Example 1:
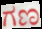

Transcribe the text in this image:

ಗಣ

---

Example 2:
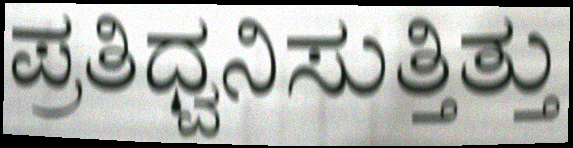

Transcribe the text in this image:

ಪ್ರತಿಧ್ವನಿಸುತ್ತಿತ್ತು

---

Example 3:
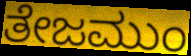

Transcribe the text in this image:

ತೇಜಮುಂ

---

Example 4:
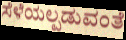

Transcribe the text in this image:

ಸೆಳೆಯಲ್ಪಡುವಂತೆ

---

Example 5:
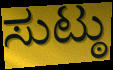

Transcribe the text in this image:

ಸುಟ್ಠು